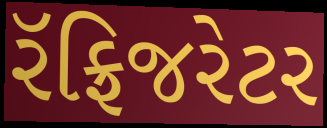
રૅફ્રિજરેટર